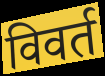
विवर्त